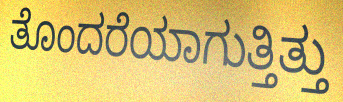
ತೊಂದರೆಯಾಗುತ್ತಿತ್ತು